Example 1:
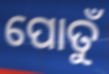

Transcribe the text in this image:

ପୋତୁଁ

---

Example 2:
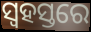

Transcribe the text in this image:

ସ୍ୱହସ୍ତରେ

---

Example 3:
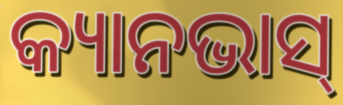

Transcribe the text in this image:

କ୍ୟାନଭାସ୍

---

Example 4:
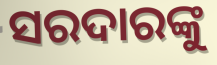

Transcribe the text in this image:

ସରଦାରଙ୍କୁ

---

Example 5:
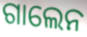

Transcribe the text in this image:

ଗାଲେନ